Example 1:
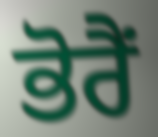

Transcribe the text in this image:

ਭੋਰੈਂ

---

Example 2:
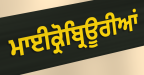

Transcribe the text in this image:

ਮਾਈਕ੍ਰੋਬ੍ਰਿਊਰੀਆਂ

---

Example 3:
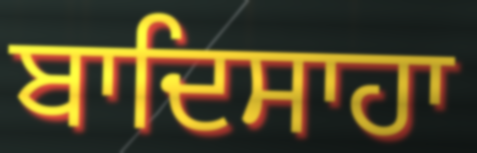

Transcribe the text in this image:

ਬਾਦਿਸਾਹਾ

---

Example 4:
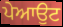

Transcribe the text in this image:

ਪੇਆਉਟ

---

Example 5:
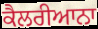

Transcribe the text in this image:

ਕੈਲਰੀਆਨਾ